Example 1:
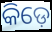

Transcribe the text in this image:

କିଡ଼େ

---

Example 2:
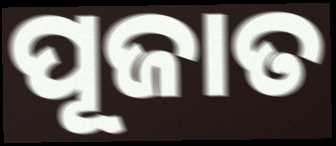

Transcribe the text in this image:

ପୂଜାତ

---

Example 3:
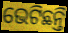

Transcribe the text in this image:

ଭେଟିଛନ୍ତି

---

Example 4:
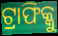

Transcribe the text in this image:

ଟ୍ରାଫିକ୍କୁ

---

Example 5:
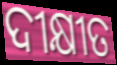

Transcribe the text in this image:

ଦୀକ୍ଷୀତ